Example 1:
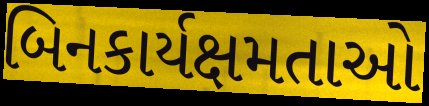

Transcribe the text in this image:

બિનકાર્યક્ષમતાઓ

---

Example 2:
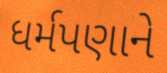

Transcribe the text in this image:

ધર્મપણાને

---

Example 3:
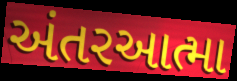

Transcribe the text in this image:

અંતરઆત્મા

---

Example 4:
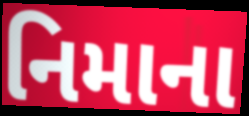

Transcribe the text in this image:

નિમાના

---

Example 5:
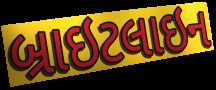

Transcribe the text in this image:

બ્રાઇટલાઇન